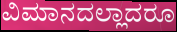
ವಿಮಾನದಲ್ಲಾದರೂ